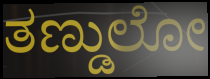
ತಣ್ಡುಲೋ